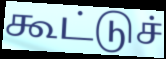
கூட்டுச்